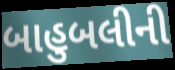
બાહુબલીની